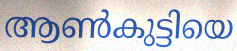
ആൺകുട്ടിയെ